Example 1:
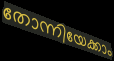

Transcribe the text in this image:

തോന്നിയേക്കാം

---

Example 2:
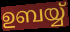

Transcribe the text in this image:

ഉബയ്യ്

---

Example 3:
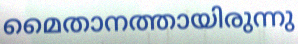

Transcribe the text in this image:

മൈതാനത്തായിരുന്നു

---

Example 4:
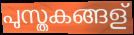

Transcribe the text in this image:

പുസ്തകങ്ങള്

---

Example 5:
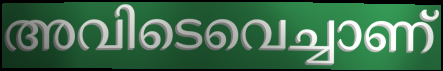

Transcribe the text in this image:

അവിടെവെച്ചാണ്